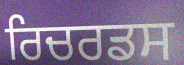
ਰਿਚਰਡਸ